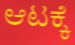
ಆಟಕ್ಕೆ